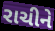
રાચીને